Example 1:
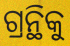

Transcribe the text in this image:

ଗ୍ରନ୍ଥିକୁ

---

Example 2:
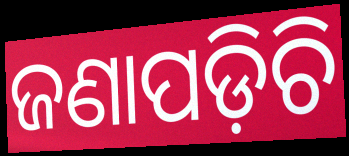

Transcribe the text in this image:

ଜଣାପଡ଼ିଚି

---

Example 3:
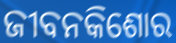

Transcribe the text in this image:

ଜୀବନକିଶୋର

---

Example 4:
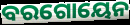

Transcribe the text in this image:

ବରଗୋୟେନ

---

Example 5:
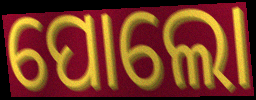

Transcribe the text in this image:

ପୋଲୋ